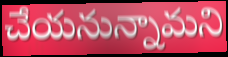
చేయనున్నామని